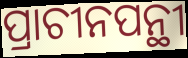
ପ୍ରାଚୀନପନ୍ଥୀ